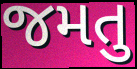
જમતુ